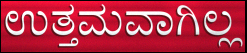
ಉತ್ತಮವಾಗಿಲ್ಲ